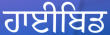
ਹਾਈਬਿਡ